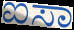
ಐಸಾ